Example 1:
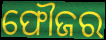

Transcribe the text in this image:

ଫୌଜର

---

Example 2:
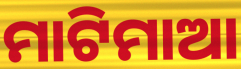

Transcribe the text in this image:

ମାଟିମାଆ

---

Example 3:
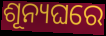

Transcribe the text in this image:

ଶୂନ୍ୟଘରେ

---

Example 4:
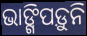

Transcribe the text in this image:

ଭାଙ୍ଗିପଡ଼ୁନି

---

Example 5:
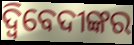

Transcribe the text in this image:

ଦ୍ଵିବେଦୀଙ୍କର